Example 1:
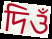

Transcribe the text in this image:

দিওঁ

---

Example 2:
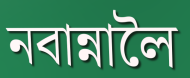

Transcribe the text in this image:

নবান্নালৈ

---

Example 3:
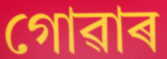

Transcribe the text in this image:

গোৱাৰ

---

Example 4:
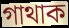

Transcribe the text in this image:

গাথাক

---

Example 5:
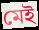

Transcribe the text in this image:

মেই